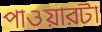
পাওয়ারটা